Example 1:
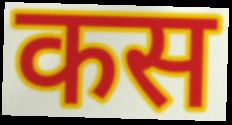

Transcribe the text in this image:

कस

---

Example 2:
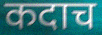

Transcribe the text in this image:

कदाच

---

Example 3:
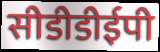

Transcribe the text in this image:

सीडीडीईपी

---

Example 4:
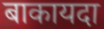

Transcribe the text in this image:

बाकायदा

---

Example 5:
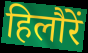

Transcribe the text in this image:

हिलौरें